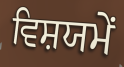
ਵਿਸ਼ਯਮੇਂ